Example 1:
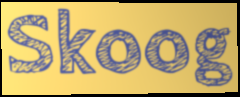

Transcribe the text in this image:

Skoog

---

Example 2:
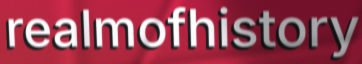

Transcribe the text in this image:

realmofhistory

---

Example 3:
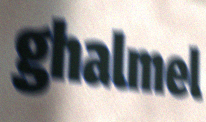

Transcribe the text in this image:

ghalmel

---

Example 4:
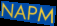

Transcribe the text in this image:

NAPM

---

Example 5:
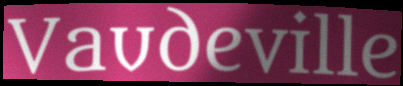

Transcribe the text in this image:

Vaudeville